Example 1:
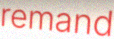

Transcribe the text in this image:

remand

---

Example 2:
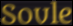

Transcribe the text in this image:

Soule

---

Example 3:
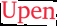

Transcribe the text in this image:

Upen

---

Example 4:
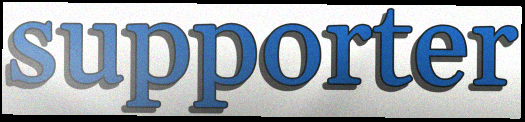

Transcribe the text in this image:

supporter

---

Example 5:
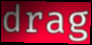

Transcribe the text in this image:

drag